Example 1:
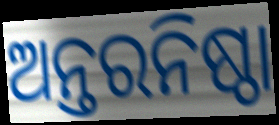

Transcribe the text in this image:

ଅନ୍ତରନିଷ୍ଠା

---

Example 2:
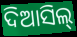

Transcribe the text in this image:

ଦିଆସିଲ୍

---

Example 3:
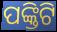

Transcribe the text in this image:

ପଙ୍କ୍ତିଟି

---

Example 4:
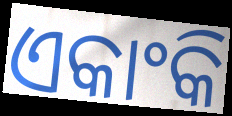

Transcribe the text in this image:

ଏକାଂକି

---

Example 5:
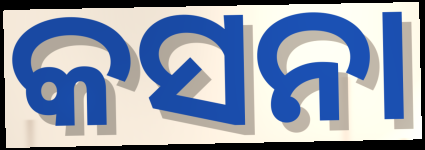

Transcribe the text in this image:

କସନା